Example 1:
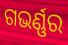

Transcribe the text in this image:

ଗଭର୍ଣ୍ଣର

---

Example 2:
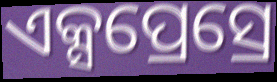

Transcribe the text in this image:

ଏକ୍ସପ୍ରେସ୍ରେ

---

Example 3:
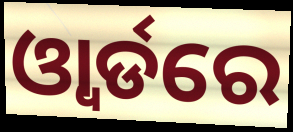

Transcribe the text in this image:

ଓ୍ବାର୍ଡରେ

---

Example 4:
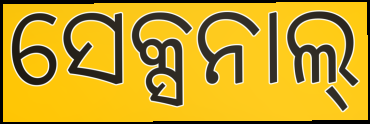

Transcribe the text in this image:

ସେକ୍ସନାଲ୍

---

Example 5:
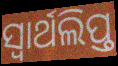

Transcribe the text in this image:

ସ୍ୱାର୍ଥଲିପ୍ତ